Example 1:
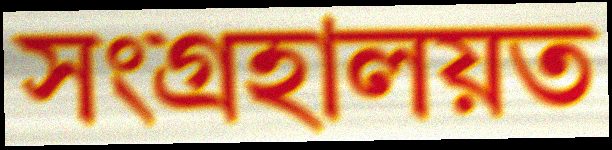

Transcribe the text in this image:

সংগ্ৰহালয়ত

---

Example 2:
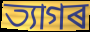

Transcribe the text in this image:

ত্যাগৰ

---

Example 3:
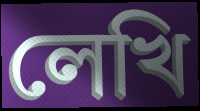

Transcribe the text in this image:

লেখি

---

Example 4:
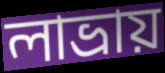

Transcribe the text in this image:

লাভ্ৰায়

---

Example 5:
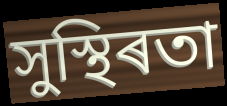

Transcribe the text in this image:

সুস্থিৰতা